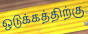
ஒடுக்கத்திற்கு